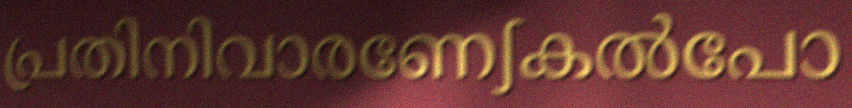
പ്രതിനിവാരണേഽകൽപോ